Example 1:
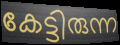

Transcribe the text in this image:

കേട്ടിരുന്ന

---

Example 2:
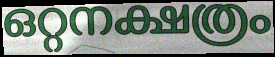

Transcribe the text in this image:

ഒറ്റനക്ഷത്രം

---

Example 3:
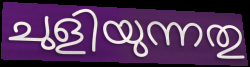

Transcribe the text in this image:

ചുളിയുന്നതു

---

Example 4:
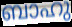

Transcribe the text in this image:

ബാഹു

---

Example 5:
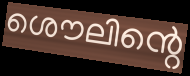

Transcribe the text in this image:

ശൌലിന്റെ